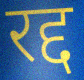
रद्द